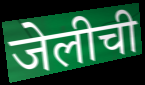
जेलीची